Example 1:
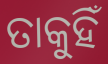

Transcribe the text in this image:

ତାକୁହିଁ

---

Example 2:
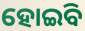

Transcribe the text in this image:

ହୋଇିବ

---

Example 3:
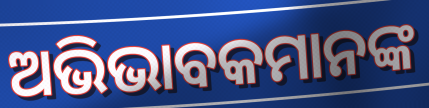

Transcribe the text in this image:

ଅଭିଭାବକମାନଙ୍କ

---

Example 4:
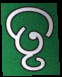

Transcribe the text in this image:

ତୃ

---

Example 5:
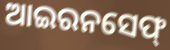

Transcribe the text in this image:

ଆଇରନସେଫ୍